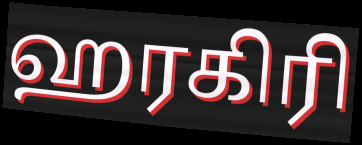
ஹரகிரி